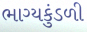
ભાગ્યકુંડળી